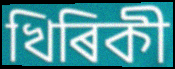
খিৰিকী